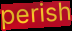
perish